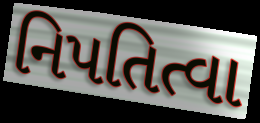
નિપતિત્વા